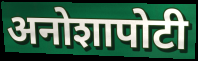
अनोशापोटी